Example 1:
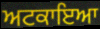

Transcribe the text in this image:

ਅਟਕਾਇਆ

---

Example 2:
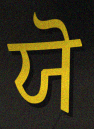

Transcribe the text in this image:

ਯੋ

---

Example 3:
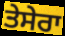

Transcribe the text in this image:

ਤੇਸੇਰਾ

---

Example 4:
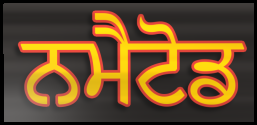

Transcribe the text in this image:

ਨਮੈਟੋਡ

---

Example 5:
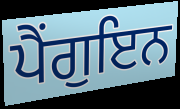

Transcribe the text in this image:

ਪੈਂਗੁਇਨ